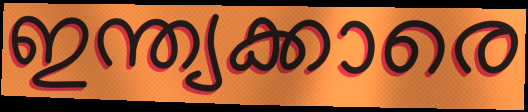
ഇന്ത്യക്കാരെ